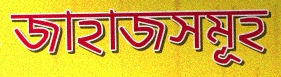
জাহাজসমূহ